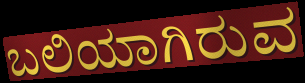
ಬಲಿಯಾಗಿರುವ